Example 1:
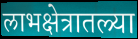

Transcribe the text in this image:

लाभक्षेत्रातल्या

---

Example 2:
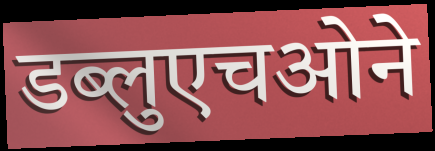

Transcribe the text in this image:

डब्लुएचओने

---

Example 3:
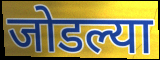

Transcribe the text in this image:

जोडल्या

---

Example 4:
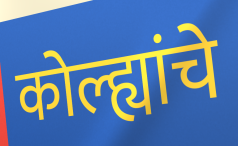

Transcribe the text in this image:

कोल्ह्यांचे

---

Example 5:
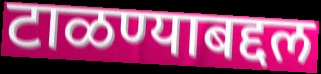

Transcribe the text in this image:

टाळण्याबद्दल